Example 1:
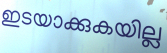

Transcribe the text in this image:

ഇടയാക്കുകയില്ല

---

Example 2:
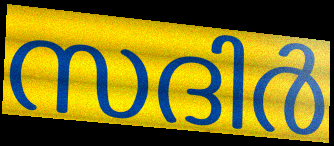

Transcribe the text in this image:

സദിർ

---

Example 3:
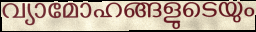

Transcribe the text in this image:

വ്യാമോഹങ്ങളുടെയും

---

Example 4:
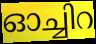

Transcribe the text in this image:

ഓച്ചിറ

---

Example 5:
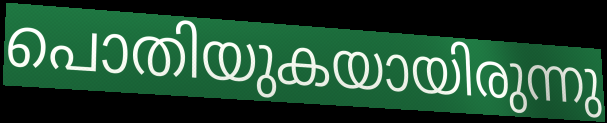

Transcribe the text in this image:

പൊതിയുകയായിരുന്നു